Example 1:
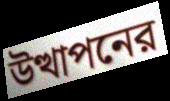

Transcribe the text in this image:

উত্থাপনের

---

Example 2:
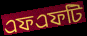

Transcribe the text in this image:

এফএফটি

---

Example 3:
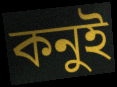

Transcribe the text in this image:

কনুই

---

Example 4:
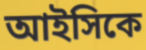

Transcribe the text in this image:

আইসিকে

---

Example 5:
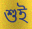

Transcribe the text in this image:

শুই